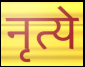
नृत्ये